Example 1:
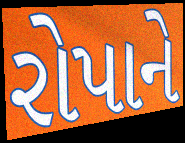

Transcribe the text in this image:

રોપાને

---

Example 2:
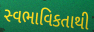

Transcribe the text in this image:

સ્વભાવિકતાથી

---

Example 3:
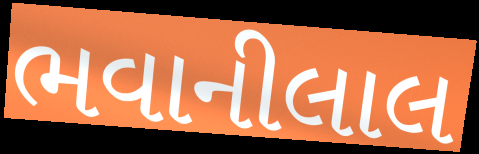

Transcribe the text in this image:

ભવાનીલાલ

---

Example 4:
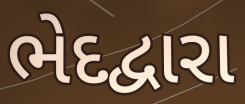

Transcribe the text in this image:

ભેદદ્વારા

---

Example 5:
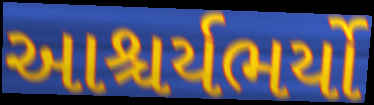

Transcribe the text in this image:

આશ્ચર્યભર્યો